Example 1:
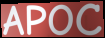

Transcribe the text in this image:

APOC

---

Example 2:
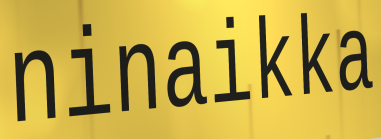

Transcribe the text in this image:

ninaikka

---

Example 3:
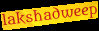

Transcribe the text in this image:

lakshadweep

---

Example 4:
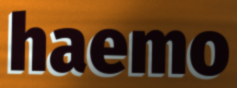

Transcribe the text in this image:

haemo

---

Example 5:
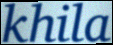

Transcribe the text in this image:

khila